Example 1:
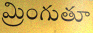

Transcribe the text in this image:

మ్రింగుతూ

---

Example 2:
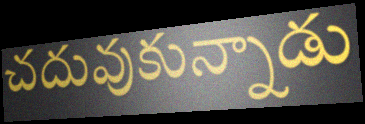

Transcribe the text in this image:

చదువుకున్నాడు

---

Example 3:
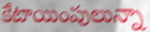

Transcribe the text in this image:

కేటాయింపులున్నా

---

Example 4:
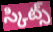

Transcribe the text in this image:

స్కిట్స్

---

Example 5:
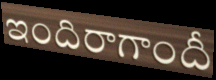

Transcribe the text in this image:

ఇందిరాగాందీ